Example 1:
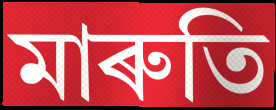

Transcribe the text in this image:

মাৰুতি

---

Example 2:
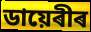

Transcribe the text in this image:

ডায়েৰীৰ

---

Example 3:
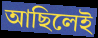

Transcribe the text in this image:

আছিলেই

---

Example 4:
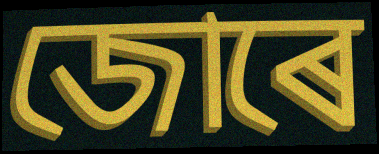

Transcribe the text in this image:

জোৰে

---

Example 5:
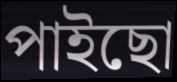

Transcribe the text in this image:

পাইছো